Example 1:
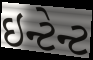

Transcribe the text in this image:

ઇન્ટેન્ટ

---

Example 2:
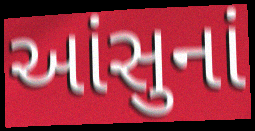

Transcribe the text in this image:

આંસુનાં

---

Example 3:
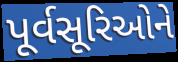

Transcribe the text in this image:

પૂર્વસૂરિઓને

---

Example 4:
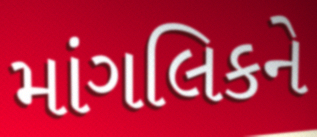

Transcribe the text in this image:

માંગલિકને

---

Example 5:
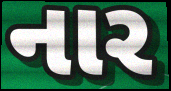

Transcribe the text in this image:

નાર